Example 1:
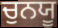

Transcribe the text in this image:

ਚੁਨਯੂ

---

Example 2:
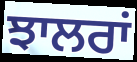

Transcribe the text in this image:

ਝਾਲਰਾਂ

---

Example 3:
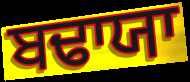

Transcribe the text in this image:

ਬਢਾਯਾ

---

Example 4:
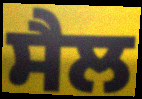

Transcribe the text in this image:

ਸੈਲ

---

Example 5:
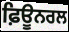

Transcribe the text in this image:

ਫ਼ਿਊਨਰਲ